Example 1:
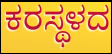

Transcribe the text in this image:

ಕರಸ್ಥಳದ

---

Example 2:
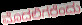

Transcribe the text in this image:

ಮೊದಲಿಗರೆಂದು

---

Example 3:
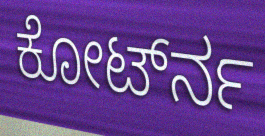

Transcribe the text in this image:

ಕೋರ್ಟ್‍ನ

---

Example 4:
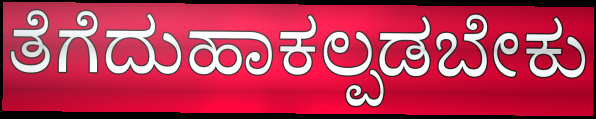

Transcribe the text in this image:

ತೆಗೆದುಹಾಕಲ್ಪಡಬೇಕು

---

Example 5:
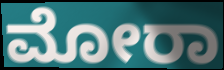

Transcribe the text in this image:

ಮೋರಾ